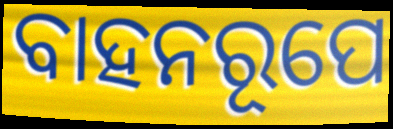
ବାହନରୂପେ